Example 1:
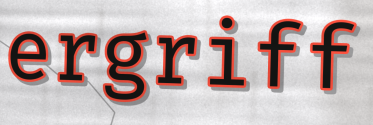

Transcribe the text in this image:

ergriff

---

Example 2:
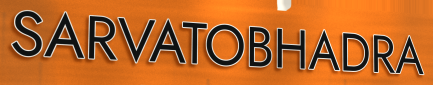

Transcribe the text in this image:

SARVATOBHADRA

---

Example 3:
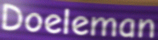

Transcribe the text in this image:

Doeleman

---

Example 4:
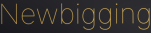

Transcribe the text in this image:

Newbigging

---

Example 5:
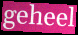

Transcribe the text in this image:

geheel